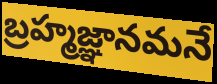
బ్రహ్మజ్ఞానమనే